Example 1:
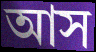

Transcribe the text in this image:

আস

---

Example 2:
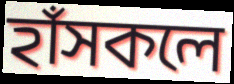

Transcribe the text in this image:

হাঁসকলে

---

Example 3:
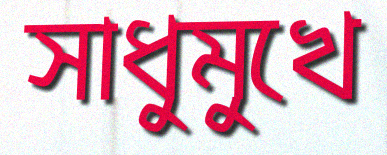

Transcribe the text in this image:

সাধুমুখে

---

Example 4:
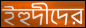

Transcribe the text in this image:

ইহুদীদের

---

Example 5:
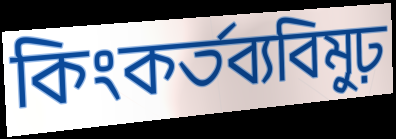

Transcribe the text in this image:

কিংকর্তব্যবিমুঢ়